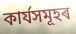
কাৰ্যসমূহৰ